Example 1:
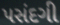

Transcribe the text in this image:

પસંદગી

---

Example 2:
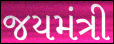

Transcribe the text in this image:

જયમંત્રી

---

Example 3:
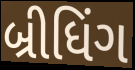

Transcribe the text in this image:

બ્રીધિંગ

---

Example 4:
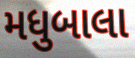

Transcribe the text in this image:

મધુબાલા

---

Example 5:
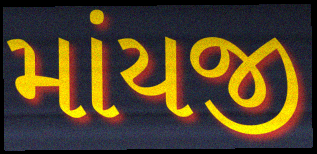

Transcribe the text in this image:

માંયજી